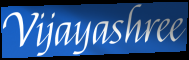
Vijayashree